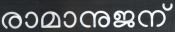
രാമാനുജന്